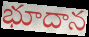
భూదాన